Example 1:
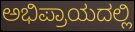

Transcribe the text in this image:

ಅಭಿಪ್ರಾಯದಲ್ಲಿ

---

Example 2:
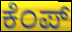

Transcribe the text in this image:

ಕೆಂಪ್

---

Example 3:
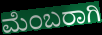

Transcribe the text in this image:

ಮೆಂಬರಾಗಿ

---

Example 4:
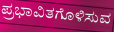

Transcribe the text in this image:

ಪ್ರಭಾವಿತಗೊಳಿಸುವ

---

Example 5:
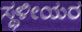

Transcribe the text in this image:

ಸ್ಥಳೀಯರ